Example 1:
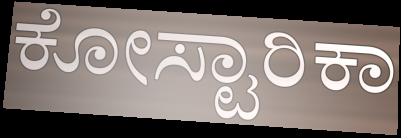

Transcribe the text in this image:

ಕೋಸ್ಟಾರಿಕಾ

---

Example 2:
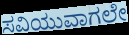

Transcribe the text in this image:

ಸವಿಯುವಾಗಲೇ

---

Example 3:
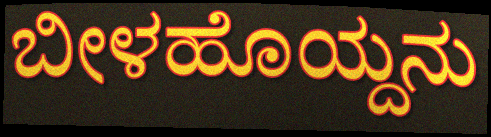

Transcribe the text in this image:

ಬೀಳಹೊಯ್ದನು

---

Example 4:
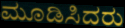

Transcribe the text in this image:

ಮೂಡಿಸಿದರು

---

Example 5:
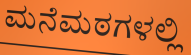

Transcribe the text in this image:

ಮನೆಮಠಗಳಲ್ಲಿ